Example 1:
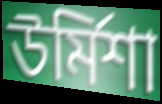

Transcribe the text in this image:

উর্মিশা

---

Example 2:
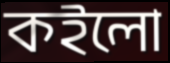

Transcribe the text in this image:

কইলো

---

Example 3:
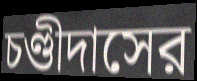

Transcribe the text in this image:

চণ্ডীদাসের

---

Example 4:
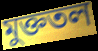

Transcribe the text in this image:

মুক্ততল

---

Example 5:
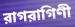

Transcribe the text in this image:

রাগরাগিণী